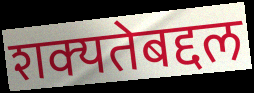
शक्यतेबद्दल